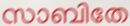
സാബിതേ